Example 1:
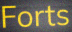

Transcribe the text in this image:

Forts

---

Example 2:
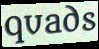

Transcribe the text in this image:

quads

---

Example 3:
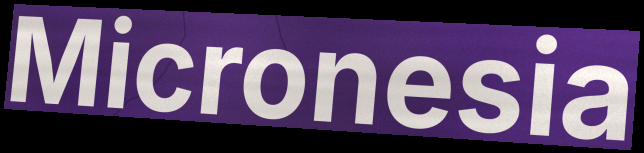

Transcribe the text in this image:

Micronesia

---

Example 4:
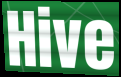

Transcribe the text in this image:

Hive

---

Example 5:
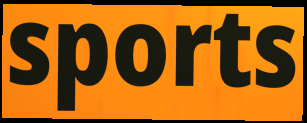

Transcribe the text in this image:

sports